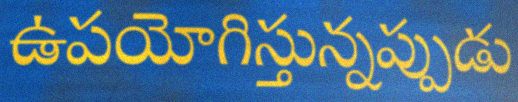
ఉపయోగిస్తున్నప్పుడు